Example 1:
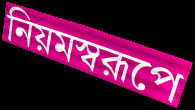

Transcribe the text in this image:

নিয়মস্বরূপে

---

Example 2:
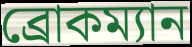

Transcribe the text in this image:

ব্রোকম্যান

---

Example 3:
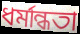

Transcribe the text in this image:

ধর্মান্ধতা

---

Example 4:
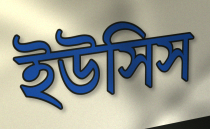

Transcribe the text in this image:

ইউসিস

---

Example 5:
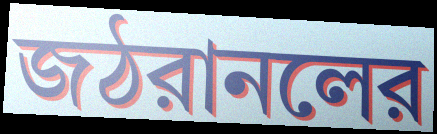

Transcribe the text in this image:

জঠরানলের